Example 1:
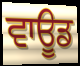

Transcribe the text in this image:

ਵਾਊਡ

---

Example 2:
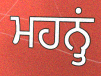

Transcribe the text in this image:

ਮਹਨ੍ਤਂ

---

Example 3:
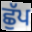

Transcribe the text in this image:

ਛੁੱਪ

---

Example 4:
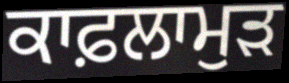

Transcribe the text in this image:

ਕਾਫ਼ਲਾਮੁੜ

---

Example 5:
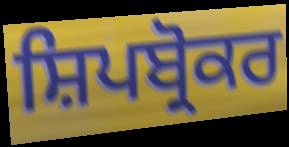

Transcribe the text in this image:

ਸ਼ਿਪਬ੍ਰੋਕਰ